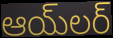
ఆయ్‌లర్